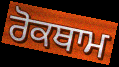
ਰੋਕਥਾਮ